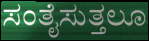
ಸಂತೈಸುತ್ತಲೂ